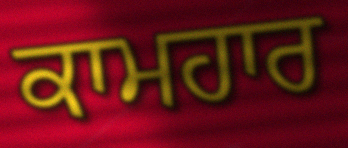
ਕਾਮਹਾਰ